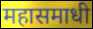
महासमाधी